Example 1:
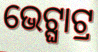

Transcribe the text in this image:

ଭେଟ୍ଘାଟ୍ର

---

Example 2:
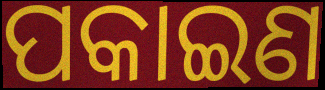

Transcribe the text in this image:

ପକାଇଣ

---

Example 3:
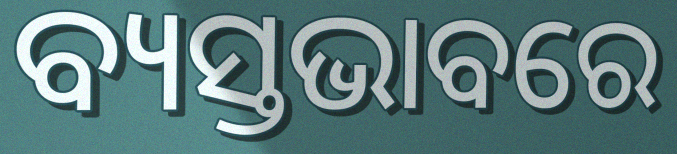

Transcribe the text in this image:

ବ୍ୟସ୍ତଭାବରେ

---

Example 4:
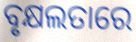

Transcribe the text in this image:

ବୃକ୍ଷଲତାରେ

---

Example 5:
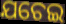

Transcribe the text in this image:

ଯଚେଇ